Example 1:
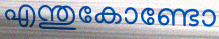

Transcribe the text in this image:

എന്തുകോണ്ടോ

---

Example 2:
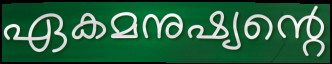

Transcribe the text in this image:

ഏകമനുഷ്യന്റെ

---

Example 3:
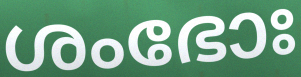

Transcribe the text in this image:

ശംഭോഃ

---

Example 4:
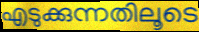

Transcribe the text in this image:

എടുക്കുന്നതിലൂടെ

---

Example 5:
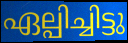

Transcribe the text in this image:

ഏല്പിച്ചിട്ടു